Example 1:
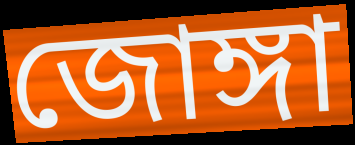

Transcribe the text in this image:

জোঙ্গা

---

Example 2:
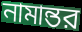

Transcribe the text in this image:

নামান্তর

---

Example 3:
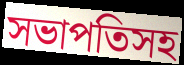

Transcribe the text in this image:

সভাপতিসহ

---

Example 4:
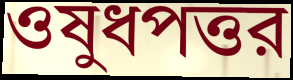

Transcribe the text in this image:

ওষুধপত্তর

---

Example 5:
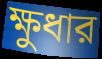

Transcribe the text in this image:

ক্ষুধার